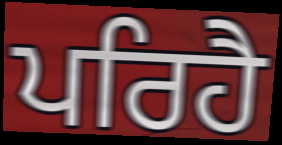
ਪਰਿਹੈ